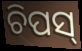
ଚିପସ୍